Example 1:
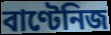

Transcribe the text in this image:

বাণ্টেনিজ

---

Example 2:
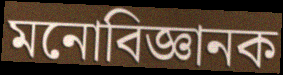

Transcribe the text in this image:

মনোবিজ্ঞানক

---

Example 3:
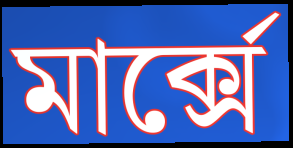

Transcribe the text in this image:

মাৰ্ক্সে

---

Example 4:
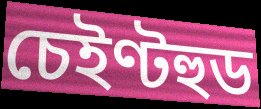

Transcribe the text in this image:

চেইণ্টহুড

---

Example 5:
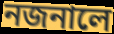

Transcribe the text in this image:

নজনালে